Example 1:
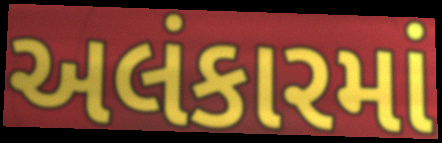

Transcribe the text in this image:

અલંકારમાં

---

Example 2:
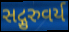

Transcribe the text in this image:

સદ્ગુરુવર્ય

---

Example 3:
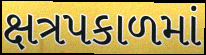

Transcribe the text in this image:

ક્ષત્રપકાળમાં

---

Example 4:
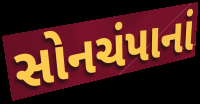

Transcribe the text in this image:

સોનચંપાનાં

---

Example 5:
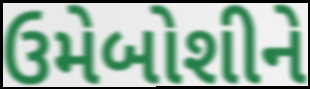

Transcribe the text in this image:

ઉમેબોશીને